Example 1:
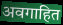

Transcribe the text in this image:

अवगाहित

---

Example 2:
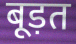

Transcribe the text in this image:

बूड़त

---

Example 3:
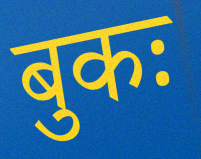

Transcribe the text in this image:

बुकः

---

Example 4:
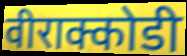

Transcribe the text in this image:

वीराक्कोडी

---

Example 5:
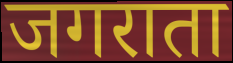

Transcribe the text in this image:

जगराता